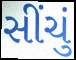
સીંચું